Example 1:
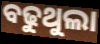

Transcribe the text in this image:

ବଢୁଥୁଲା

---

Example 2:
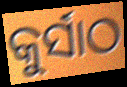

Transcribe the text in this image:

କୁର୍ସାଠ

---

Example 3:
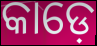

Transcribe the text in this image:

କାଡ଼େ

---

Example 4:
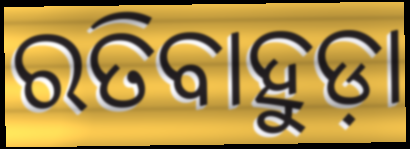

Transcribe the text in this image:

ରତିବାହୁଡ଼ା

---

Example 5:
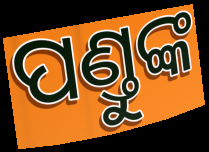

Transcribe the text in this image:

ପଣ୍ତୁଙ୍କ